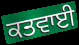
ਕਤਵਾਈ